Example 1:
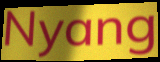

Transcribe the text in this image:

Nyang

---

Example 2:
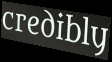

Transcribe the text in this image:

credibly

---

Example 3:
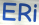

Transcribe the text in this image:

ERi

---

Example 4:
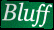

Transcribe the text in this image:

Bluff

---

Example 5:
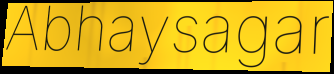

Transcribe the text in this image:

Abhaysagar